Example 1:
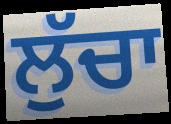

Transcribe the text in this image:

ਲੁੱਚਾ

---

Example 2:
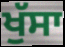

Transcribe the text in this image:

ਖੁੱਸਾ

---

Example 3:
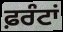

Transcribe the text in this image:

ਫ਼ਰੰਟਾਂ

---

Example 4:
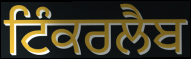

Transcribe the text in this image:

ਟਿੰਕਰਲੈਬ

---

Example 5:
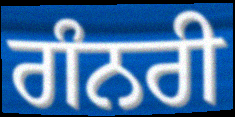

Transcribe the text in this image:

ਗੰਨਰੀ